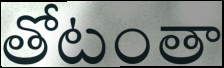
తోటంతా